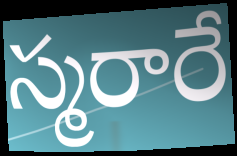
స్మరారే